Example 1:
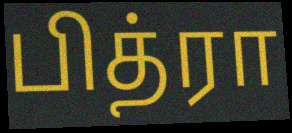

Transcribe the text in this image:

பித்ரா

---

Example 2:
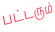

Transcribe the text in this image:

பட்டரும்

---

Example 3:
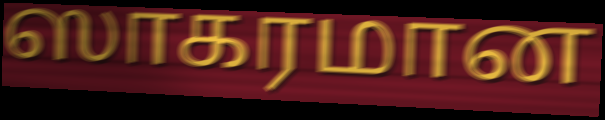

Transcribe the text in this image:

ஸாகரமான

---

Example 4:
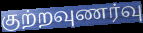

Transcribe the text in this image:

குற்றவுணர்வு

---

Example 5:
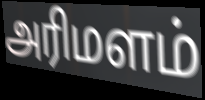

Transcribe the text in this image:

அரிமளம்